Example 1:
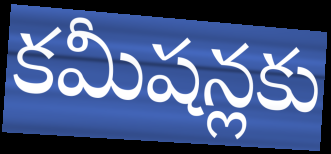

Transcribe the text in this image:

కమీషన్లకు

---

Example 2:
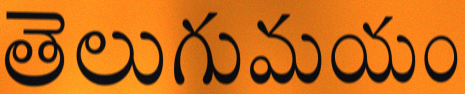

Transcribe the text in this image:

తెలుగుమయం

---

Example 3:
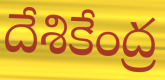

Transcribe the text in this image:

దేశికేంద్ర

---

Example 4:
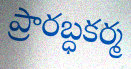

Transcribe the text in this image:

ప్రారబ్ధకర్మ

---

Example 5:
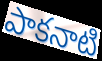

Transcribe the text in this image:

పాకనాటి